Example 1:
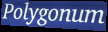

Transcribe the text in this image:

Polygonum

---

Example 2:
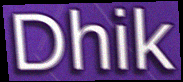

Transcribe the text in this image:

Dhik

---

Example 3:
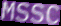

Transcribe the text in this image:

MSSC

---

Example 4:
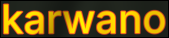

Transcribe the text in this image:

karwano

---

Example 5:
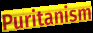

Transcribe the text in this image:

Puritanism